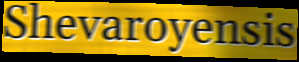
Shevaroyensis